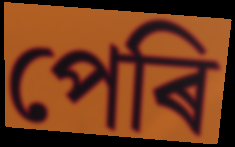
পেৰি